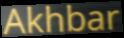
Akhbar